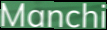
Manchi